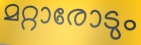
മറ്റാരോടും